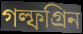
গল্ফগ্রিন